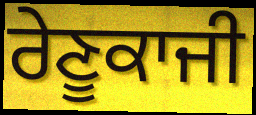
ਰੇਣੂਕਾਜੀ